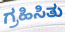
ಗ್ರಹಿಸಿತು